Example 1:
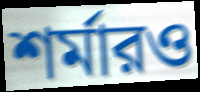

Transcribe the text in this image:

শর্মারও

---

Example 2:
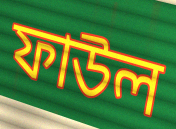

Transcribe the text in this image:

ফাউল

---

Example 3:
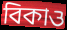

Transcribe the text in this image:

বিকাও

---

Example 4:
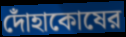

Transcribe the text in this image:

দোঁহাকোষের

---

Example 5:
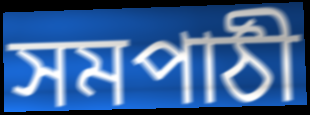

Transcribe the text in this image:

সমপাঠী